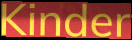
Kinder